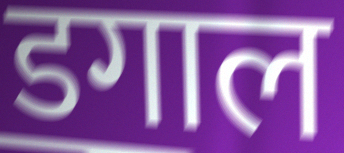
डगाल